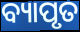
ବ୍ୟାପୃତ